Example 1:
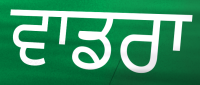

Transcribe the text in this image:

ਵਾਡਰਾ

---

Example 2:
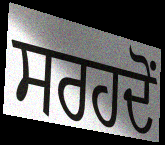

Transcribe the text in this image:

ਸਰਹਦੋਂ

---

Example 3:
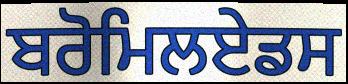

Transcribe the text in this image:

ਬਰੋਮਿਲਏਡਸ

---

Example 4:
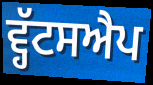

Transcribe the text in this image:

ਵ੍ਹੱਟਸਐਪ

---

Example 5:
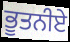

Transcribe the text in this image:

ਭੂਤਨੀਏ